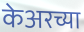
केअरच्या